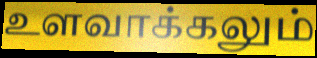
உளவாக்கலும்